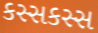
કસ્સકસ્સ